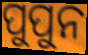
ପୁପୁନ